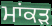
ਮਾਂਕੜ